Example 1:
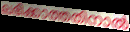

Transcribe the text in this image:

ലഭിക്കാത്തതിനാൽ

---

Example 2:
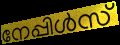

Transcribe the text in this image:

നേപ്പിൾസ്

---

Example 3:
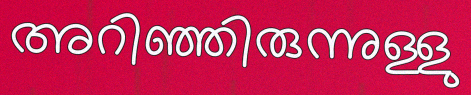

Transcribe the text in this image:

അറിഞ്ഞിരുന്നുള്ളു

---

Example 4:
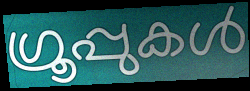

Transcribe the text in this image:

ഗ്രൂപ്പുകൾ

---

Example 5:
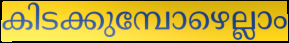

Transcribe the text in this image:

കിടക്കുമ്പോഴെല്ലാം